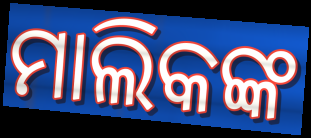
ମାଲିକଙ୍କ